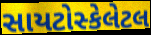
સાયટોસ્કેલેટલ